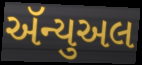
ઍન્યુઅલ